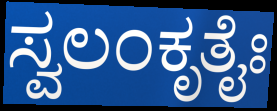
ಸ್ವಲಂಕೃತೈಃ